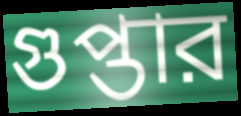
গুপ্তার